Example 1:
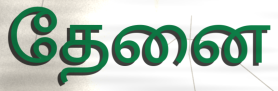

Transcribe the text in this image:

தேனை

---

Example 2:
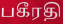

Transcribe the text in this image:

பகீரதி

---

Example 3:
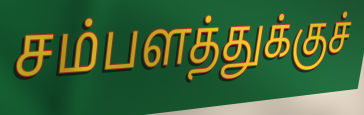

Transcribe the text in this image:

சம்பளத்துக்குச்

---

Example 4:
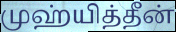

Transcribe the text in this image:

முஹ்யித்தீன்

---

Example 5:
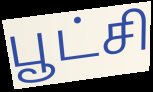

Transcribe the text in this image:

பூட்சி